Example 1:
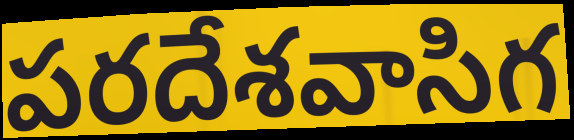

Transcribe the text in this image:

పరదేశవాసిగ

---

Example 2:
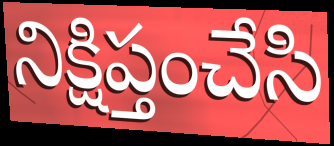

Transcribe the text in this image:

నిక్షిప్తంచేసి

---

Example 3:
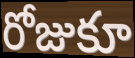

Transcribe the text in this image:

రోజుకూ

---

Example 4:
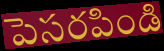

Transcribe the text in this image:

పెసరపిండి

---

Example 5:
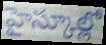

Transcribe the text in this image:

హైస్కూల్లో